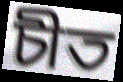
চীত